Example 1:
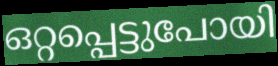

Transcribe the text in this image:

ഒറ്റപ്പെട്ടുപോയി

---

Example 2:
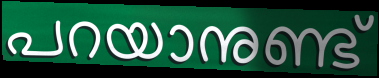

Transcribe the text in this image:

പറയാനുണ്ട്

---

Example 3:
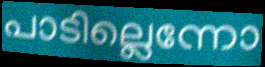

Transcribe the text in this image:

പാടില്ലെന്നോ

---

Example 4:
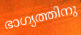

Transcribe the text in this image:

ഭാഗ്യത്തിനു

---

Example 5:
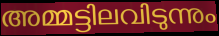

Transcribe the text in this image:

അമ്മട്ടിലവിടുന്നും